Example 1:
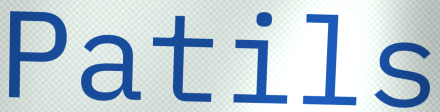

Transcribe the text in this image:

Patils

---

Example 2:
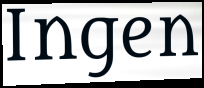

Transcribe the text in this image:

Ingen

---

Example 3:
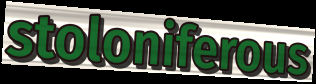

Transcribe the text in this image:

stoloniferous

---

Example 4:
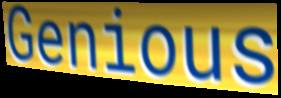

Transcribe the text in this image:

Genious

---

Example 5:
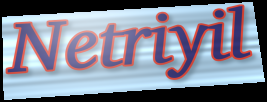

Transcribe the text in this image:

Netriyil